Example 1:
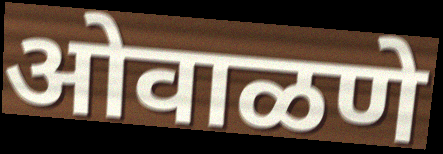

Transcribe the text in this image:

ओवाळणे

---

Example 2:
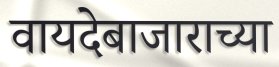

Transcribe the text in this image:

वायदेबाजाराच्या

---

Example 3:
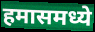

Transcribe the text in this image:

हमासमध्ये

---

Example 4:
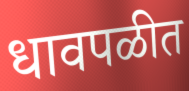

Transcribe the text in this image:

धावपळीत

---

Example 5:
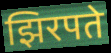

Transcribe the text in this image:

झिरपते